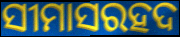
ସୀମାସରହଦ